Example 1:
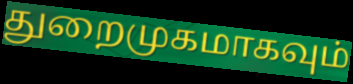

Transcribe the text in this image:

துறைமுகமாகவும்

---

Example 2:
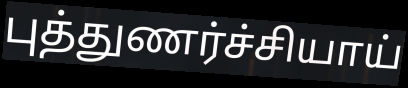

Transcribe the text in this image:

புத்துணர்ச்சியாய்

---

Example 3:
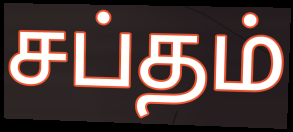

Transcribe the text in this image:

சப்தம்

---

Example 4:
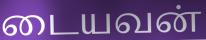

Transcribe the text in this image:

டையவன்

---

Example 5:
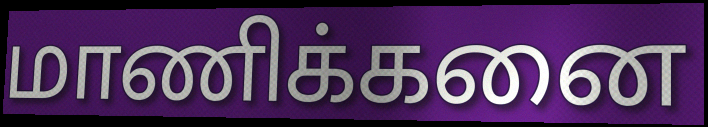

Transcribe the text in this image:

மாணிக்கனை